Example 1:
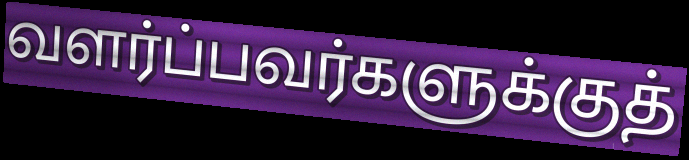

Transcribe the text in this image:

வளர்ப்பவர்களுக்குத்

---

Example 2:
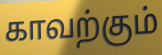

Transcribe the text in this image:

காவற்கும்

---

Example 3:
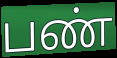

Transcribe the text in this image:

பண்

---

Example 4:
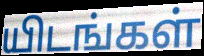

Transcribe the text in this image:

யிடங்கள்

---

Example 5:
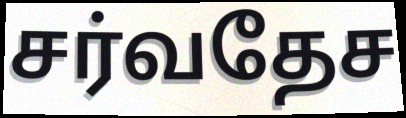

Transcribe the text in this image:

சர்வதேச